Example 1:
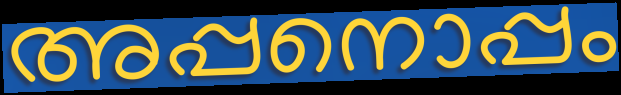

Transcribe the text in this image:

അപ്പനൊപ്പം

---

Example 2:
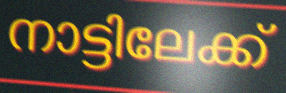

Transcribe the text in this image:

നാട്ടിലേക്ക്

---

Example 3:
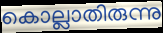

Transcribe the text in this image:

കൊല്ലാതിരുന്നു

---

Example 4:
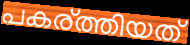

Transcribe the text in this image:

പകര്ത്തിയത്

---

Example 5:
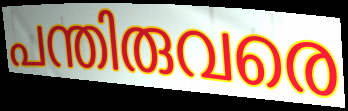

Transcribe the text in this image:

പന്തിരുവരെ